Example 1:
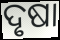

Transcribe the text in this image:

ଦୃଷା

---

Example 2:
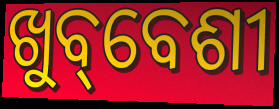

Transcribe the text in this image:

ଖୁବ୍‌ବେଶୀ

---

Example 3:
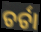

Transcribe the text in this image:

ଚର୍ଚା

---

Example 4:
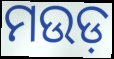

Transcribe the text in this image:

ମଉଡ଼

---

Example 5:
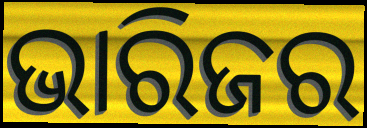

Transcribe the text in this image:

ଭାରିଜର